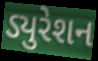
ડ્યુરેશન